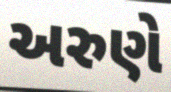
અરુણે